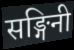
सङ्गिनी